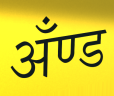
अँण्ड